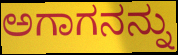
ಅಗಾಗನನ್ನು